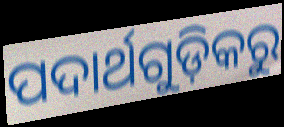
ପଦାର୍ଥଗୁଡ଼ିକରୁ